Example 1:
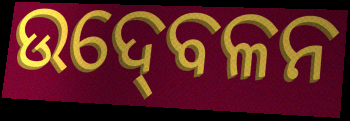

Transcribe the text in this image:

ଉଦ୍‍ବେଳନ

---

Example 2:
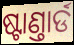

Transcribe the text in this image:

ଷ୍ଟାଣ୍ତାର୍ଡ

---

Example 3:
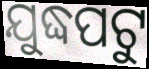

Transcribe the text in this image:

ଯୁଦ୍ଧପଟୁ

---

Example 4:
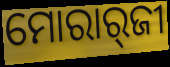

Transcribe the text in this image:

ମୋରାର୍‍ଜୀ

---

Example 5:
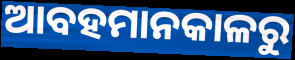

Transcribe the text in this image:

ଆବହମାନକାଳରୁ